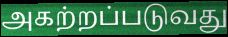
அகற்றப்படுவது